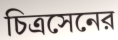
চিত্রসেনের